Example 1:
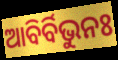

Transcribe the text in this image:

ଆବିର୍ବିଭୁନଃ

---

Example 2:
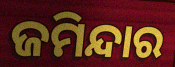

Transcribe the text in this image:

ଜମିନ୍ଦାର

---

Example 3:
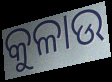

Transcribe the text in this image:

କୁଳାଉ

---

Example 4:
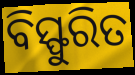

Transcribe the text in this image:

ବିସ୍ଫୁରିତ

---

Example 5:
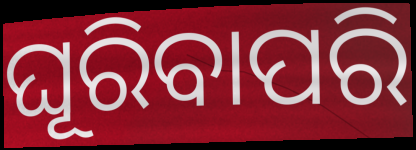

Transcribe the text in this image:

ଘୂରିବାପରି